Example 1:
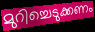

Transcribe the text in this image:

മുറിച്ചെടുക്കണം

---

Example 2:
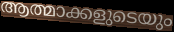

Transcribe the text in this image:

ആത്മാക്കളുടെയും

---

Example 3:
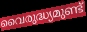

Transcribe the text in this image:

വൈരുദ്ധ്യമുണ്ട്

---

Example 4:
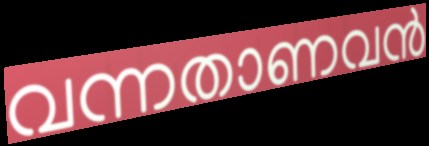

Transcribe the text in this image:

വന്നതാണവൻ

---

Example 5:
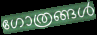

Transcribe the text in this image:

ഗോത്രങ്ങൾ